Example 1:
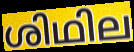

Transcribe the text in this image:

ശിഥില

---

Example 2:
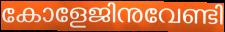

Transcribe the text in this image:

കോളേജിനുവേണ്ടി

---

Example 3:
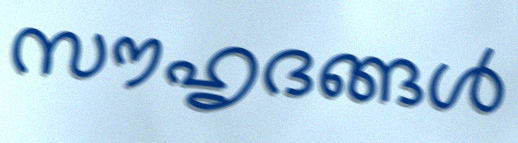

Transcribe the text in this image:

സൗഹൃദങ്ങൾ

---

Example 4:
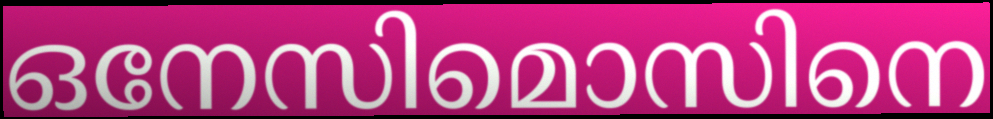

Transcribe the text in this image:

ഒനേസിമൊസിനെ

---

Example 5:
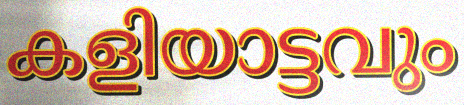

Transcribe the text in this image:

കളിയാട്ടവും